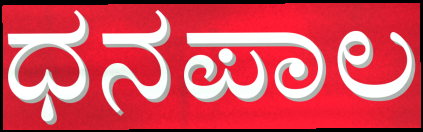
ಧನಪಾಲ